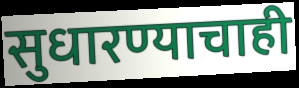
सुधारण्याचाही